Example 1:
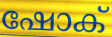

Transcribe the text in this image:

ഷോക്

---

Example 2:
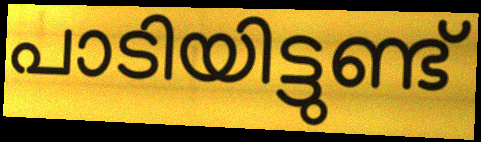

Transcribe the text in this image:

പാടിയിട്ടുണ്ട്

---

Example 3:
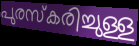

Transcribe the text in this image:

പുരസ്കരിച്ചുള്ള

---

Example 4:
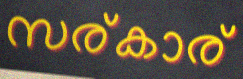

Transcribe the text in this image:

സര്കാര്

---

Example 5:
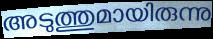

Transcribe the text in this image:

അടുത്തുമായിരുന്നു